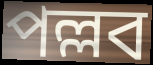
পল্লব